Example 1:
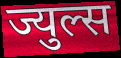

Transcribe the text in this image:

ज्युल्स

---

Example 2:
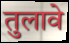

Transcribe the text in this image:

तुलावे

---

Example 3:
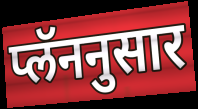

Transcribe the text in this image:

प्लॅननुसार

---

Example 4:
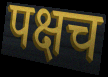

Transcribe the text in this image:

पक्षच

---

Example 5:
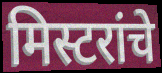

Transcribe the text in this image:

मिस्टरांचे